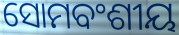
ସୋମବଂଶୀୟ